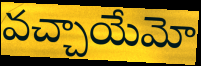
వచ్చాయేమో